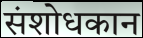
संशोधकान